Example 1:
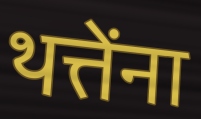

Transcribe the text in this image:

थत्तेंना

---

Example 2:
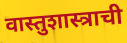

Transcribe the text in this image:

वास्तुशास्त्राची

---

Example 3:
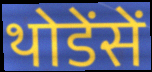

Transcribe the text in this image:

थोडेंसें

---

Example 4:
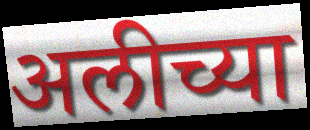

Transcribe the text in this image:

अलीच्या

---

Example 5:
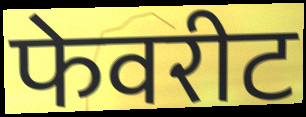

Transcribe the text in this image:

फेवरीट